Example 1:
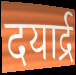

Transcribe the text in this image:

दयार्द्र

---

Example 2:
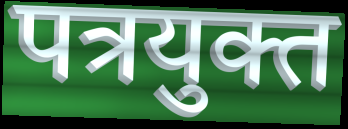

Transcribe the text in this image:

पत्रयुक्त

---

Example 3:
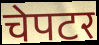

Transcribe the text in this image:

चेपटर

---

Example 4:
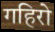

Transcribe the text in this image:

गहिरो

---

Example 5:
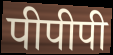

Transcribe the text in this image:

पीपीपी